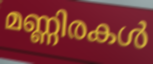
മണ്ണിരകൾ